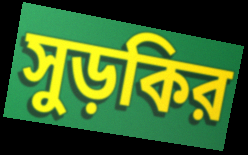
সুড়কির